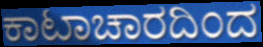
ಕಾಟಾಚಾರದಿಂದ